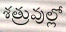
శత్రువుల్లో